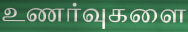
உணர்வுகளை